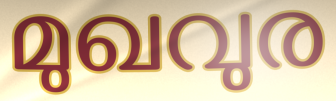
മുഖവുര